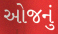
ઓજનું